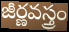
జీర్ణవస్త్రం